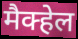
मैक्हेल